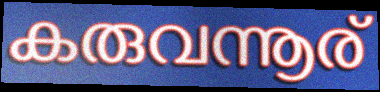
കരുവന്നൂര്